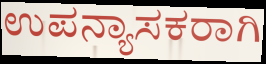
ಉಪನ್ಯಾಸಕರಾಗಿ